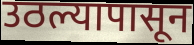
उठल्यापासून